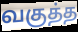
வகுத்த